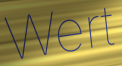
Wert